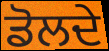
ਡੋਲਦੇ